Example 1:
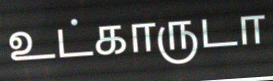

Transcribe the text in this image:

உட்காருடா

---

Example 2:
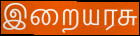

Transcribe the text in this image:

இறையரசு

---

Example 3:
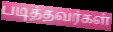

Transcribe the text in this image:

படித்தவர்கள்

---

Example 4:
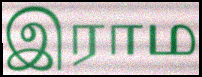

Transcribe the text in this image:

இராம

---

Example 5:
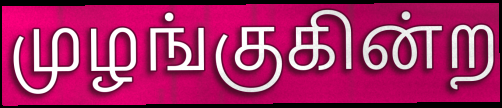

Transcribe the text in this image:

முழங்குகின்ற